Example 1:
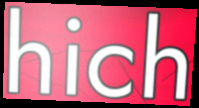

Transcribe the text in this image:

hich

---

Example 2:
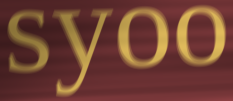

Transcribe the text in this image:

syoo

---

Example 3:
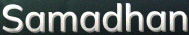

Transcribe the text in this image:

Samadhan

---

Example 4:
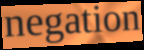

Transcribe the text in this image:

negation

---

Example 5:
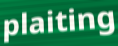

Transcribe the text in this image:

plaiting